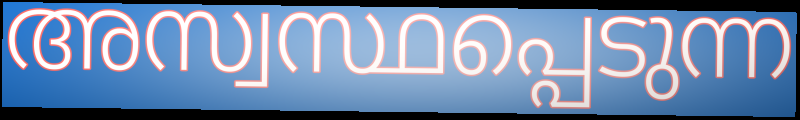
അസ്വസ്ഥപ്പെടുന്ന